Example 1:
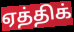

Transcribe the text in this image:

ஏத்திக்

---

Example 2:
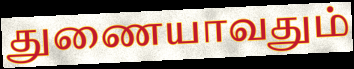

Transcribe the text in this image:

துணையாவதும்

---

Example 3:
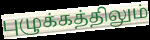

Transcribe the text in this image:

புழுக்கத்திலும்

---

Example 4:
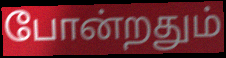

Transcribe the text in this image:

போன்றதும்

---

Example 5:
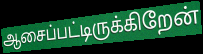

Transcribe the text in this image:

ஆசைப்பட்டிருக்கிறேன்